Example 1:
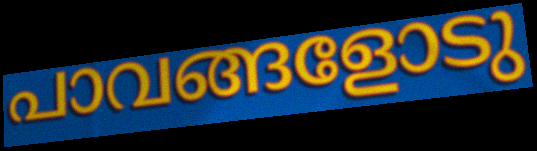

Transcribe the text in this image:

പാവങ്ങളോടു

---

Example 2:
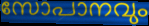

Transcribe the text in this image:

സോപാനവും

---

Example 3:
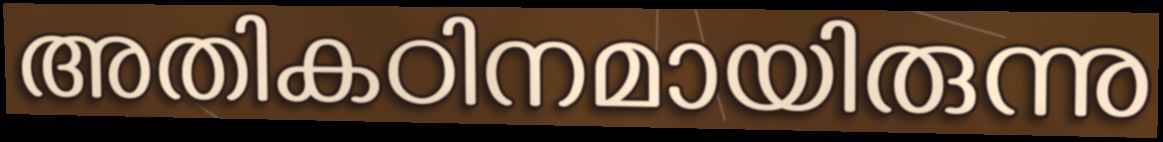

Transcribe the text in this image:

അതികഠിനമായിരുന്നു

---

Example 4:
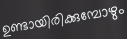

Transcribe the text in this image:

ഉണ്ടായിരിക്കുമ്പോഴും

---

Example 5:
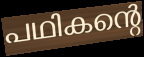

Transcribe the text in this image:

പഥികന്റെ